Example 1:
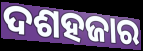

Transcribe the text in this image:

ଦଶହଜାର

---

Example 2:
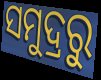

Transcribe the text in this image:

ସମୁଦ୍ରରୁ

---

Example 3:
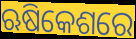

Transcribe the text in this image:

ଋଷିକେଶରେ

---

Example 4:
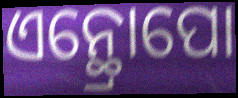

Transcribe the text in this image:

ଏନ୍ଥ୍ରୋପୋ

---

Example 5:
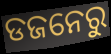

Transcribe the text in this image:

ଡଜନେରୁ